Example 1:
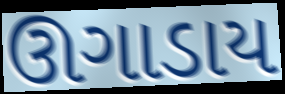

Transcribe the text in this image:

ઊગાડાય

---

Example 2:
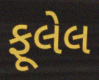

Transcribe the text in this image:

ફૂલેલ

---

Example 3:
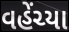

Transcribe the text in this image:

વહેંચ્યા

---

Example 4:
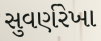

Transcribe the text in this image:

સુવર્ણરેખા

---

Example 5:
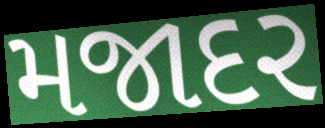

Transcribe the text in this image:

મજાદર